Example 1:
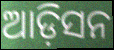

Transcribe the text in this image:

ଆଡ଼ିସନ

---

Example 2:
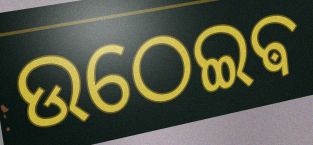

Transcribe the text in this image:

ଉଠେଇଵ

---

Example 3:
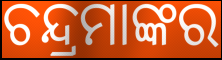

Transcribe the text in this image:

ଚନ୍ଦ୍ରମାଙ୍କର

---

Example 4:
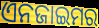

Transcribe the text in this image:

ଏନଜାଇମର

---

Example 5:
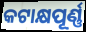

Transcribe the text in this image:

କଟାକ୍ଷପୂର୍ଣ୍ଣ